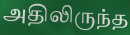
அதிலிருந்த